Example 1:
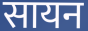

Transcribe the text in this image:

सायन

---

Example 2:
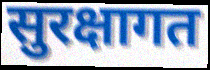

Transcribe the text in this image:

सुरक्षागत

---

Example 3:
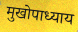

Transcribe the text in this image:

मुखोपाध्याय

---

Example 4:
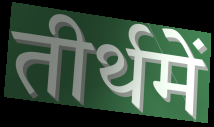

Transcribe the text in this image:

तीर्थमें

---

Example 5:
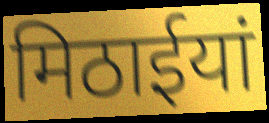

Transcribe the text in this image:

मिठाईयां